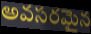
అవసరమైన